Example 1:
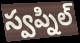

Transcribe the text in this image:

స్వప్నిల్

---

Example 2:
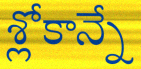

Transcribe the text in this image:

శ్లోకాన్నే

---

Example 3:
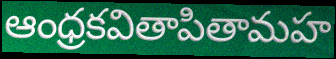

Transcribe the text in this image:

ఆంధ్రకవితాపితామహ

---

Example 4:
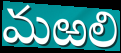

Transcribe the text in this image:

మఱలి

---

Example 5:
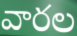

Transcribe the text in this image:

వారల